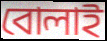
বোলাই